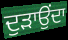
ਦੁੜਾਉਂਦਾ